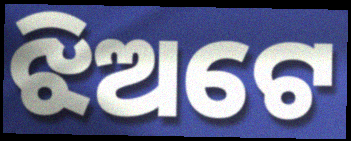
ଝିଅଟେ